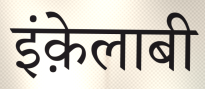
इंक़ेलाबी